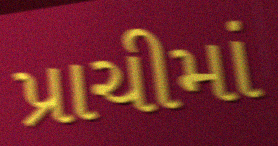
પ્રાચીમાં